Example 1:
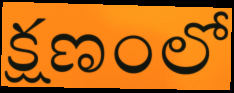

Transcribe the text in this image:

క్షణంలో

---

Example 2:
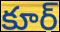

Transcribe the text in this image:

కూర్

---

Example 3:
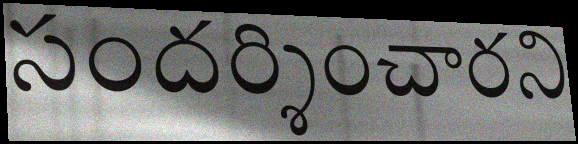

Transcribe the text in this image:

సందర్శించారని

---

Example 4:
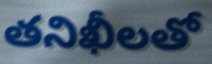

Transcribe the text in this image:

తనిఖీలతో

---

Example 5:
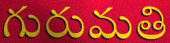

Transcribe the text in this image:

గురుమతి